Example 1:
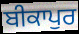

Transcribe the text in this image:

ਬੀਕਾਪੁਰ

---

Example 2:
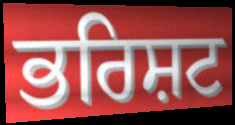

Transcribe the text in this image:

ਭਰਿਸ਼ਟ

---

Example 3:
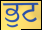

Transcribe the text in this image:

ਭੁਟ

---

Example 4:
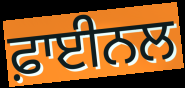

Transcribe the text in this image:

ਫ਼ਾਈਨਲ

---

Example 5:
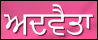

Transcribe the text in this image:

ਅਦਵੈਤਾ